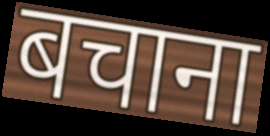
बचाना